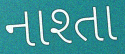
નાશ્તા